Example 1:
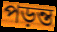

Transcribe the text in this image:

পড়ন্ত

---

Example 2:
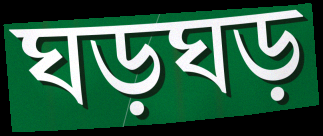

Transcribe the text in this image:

ঘড়ঘড়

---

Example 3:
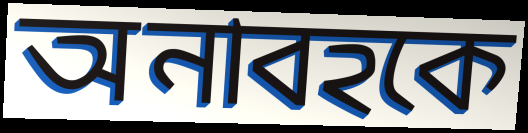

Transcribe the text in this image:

অনাবহকে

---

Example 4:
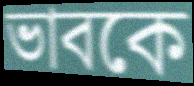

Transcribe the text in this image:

ভাবকে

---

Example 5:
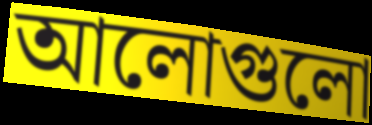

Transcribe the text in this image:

আলোগুলো